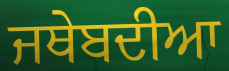
ਜਥੇਬਦੀਆ